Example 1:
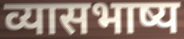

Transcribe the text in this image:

व्यासभाष्य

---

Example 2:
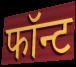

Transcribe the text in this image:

फॉन्ट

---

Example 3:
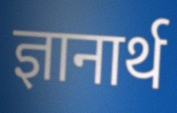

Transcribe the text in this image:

ज्ञानार्थ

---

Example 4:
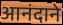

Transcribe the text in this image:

आनंदाने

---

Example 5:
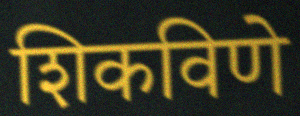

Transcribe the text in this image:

शिकविणे